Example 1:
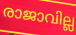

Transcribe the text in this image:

രാജാവില്ല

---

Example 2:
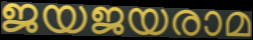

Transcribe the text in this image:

ജയജയരാമ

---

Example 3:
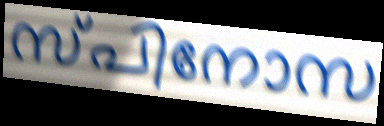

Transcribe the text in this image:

സ്പിനോസ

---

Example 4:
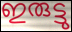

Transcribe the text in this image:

ഇരുട്ടു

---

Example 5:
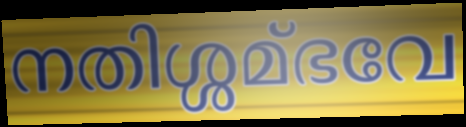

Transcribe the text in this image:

നതിശ്ശമ്ഭവേ